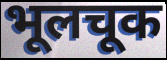
भूलचूक